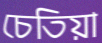
চেতিয়া